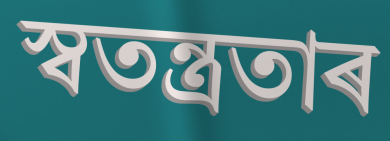
স্বতন্ত্ৰতাৰ